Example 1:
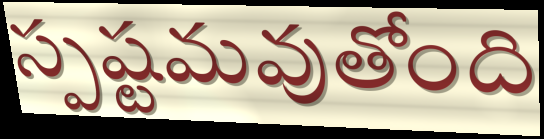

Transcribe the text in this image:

స్పష్టమవుతోంది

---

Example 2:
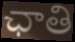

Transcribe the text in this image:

ఛాతి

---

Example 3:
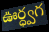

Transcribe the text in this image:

ఊర్ధ్వగ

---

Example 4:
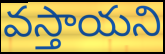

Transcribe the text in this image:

వస్తాయని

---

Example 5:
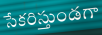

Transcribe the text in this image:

సేకరిస్తుండగా